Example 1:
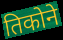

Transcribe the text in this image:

तिकोने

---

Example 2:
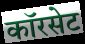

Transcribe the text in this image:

कॉरसेट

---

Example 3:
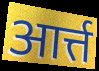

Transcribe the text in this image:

आर्त्त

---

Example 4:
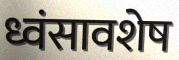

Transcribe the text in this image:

ध्वंसावशेष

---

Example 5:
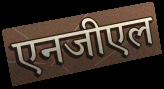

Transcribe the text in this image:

एनजीएल